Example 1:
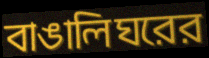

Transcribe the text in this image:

বাঙালিঘরের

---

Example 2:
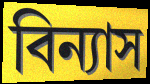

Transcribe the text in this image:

বিন্যাস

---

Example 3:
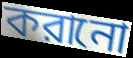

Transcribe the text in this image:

করানো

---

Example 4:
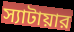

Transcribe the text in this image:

স্যাটায়ার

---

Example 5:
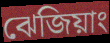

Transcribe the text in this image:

ঝেজিয়াং